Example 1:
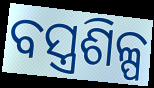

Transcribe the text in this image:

ବସ୍ତ୍ରଶିଳ୍ପ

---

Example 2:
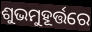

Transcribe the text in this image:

ଶୁଭମୁହୂର୍ତ୍ତରେ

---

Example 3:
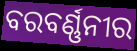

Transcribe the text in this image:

ବରବର୍ଣ୍ଣନୀର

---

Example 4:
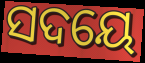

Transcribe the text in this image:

ସଦୟେ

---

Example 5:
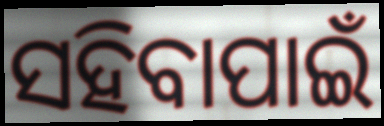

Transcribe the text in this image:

ସହିବାପାଇଁ